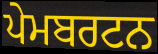
ਪੇਮਬਰਟਨ